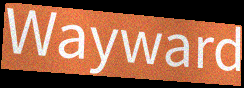
Wayward